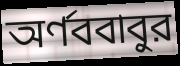
অর্ণববাবুর